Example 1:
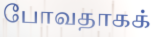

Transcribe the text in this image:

போவதாகக்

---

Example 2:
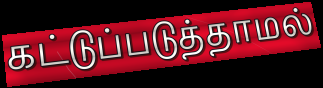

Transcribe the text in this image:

கட்டுப்படுத்தாமல்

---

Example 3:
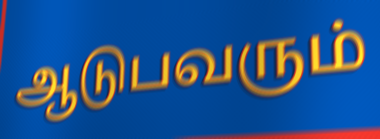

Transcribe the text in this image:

ஆடுபவரும்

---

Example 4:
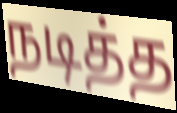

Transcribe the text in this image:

நடித்த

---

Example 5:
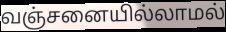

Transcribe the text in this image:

வஞ்சனையில்லாமல்